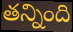
తన్నింది